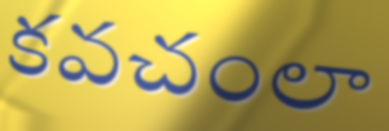
కవచంలా